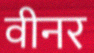
वीनर